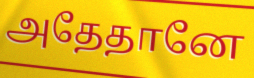
அதேதானே